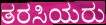
ತರಸಿಯರು